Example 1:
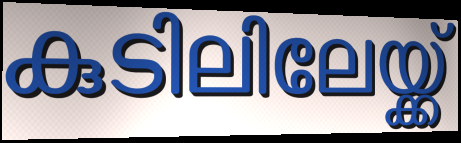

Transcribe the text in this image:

കുടിലിലേയ്ക്ക്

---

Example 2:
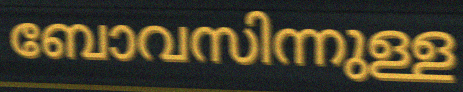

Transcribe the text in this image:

ബോവസിന്നുള്ള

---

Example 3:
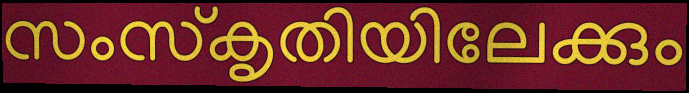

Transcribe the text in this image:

സംസ്കൃതിയിലേക്കും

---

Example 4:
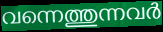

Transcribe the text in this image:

വന്നെത്തുന്നവർ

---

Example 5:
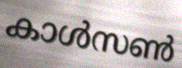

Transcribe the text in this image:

കാൾസൺ